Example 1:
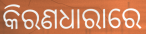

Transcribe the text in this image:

କିରଣଧାରାରେ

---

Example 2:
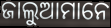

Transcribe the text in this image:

ଜାଲୁଆମାନେ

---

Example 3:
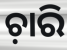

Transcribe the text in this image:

ଚ଼ାରି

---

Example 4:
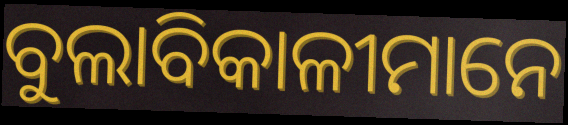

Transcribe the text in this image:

ବୁଲାବିକାଳୀମାନେ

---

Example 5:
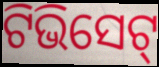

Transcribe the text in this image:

ଟିଭିସେଟ୍